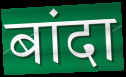
बांदा